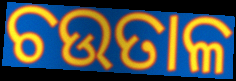
ଚଉତାଳ